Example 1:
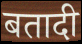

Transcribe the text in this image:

बतादी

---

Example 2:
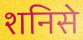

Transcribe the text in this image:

शनिसे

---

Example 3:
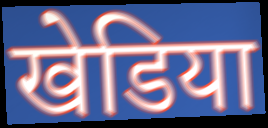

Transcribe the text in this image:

खेडिया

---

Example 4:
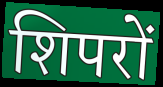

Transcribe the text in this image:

शिपरों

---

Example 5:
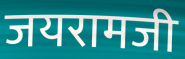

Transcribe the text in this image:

जयरामजी